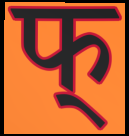
फ्